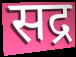
सद्र